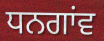
ਧਨਗਾਂਵ